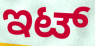
ಇಟ್